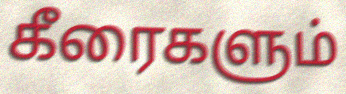
கீரைகளும்